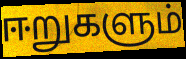
ஈறுகளும்